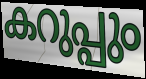
കറുപ്പും